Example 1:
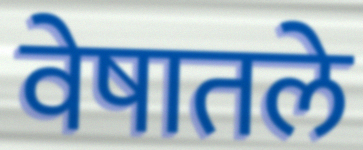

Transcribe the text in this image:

वेषातले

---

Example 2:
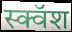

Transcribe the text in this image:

स्क्वॅश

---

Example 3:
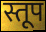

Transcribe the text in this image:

स्तूप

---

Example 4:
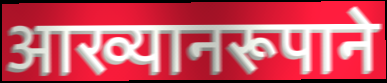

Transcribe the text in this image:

आख्यानरूपाने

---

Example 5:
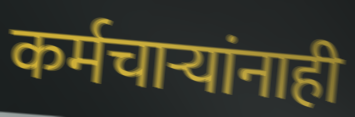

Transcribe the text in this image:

कर्मचार्‍यांनाही